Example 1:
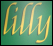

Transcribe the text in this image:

lilly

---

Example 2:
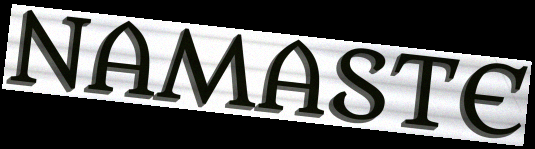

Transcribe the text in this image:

NAMASTE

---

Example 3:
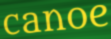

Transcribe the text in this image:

canoe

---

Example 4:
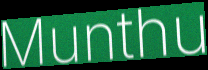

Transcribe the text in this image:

Munthu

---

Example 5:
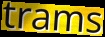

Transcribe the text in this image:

trams